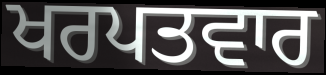
ਖਰਪਤਵਾਰ